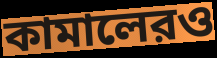
কামালেরও